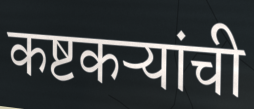
कष्टकऱ्यांची